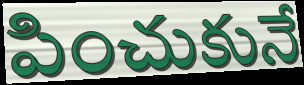
పించుకునే